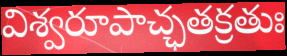
విశ్వరూపాచ్ఛతక్రతుః